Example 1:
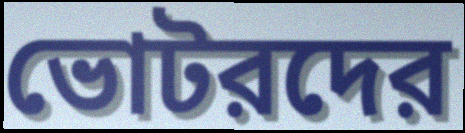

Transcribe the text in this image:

ভোটরদের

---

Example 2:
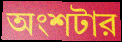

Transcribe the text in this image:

অংশটার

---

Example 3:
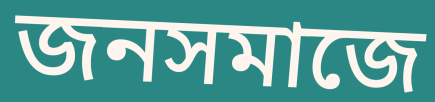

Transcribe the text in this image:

জনসমাজে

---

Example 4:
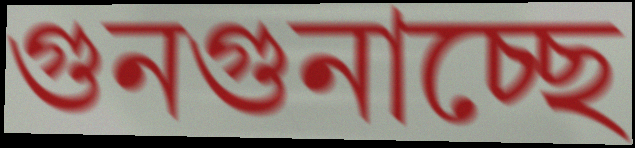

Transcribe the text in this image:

গুনগুনাচ্ছে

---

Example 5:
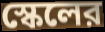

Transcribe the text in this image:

স্কেলের